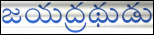
జయద్రథుడు